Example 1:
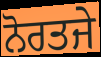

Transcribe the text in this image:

ਨੋਰਤਜੇ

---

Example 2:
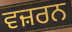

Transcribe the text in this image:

ਵਜ਼ਰਨ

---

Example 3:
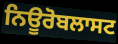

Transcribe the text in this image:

ਨਿਊਰੋਬਲਾਸਟ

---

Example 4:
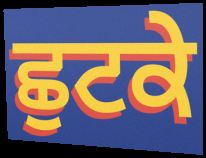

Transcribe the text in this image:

ਛੁਟਕੇ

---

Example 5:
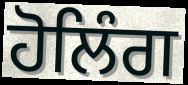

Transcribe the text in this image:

ਹੋਲਿੰਗ